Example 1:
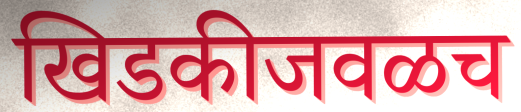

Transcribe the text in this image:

खिडकीजवळच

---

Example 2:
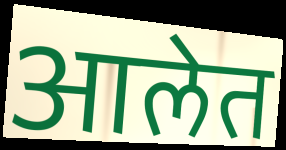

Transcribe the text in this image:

आलेत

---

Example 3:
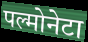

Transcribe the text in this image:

पल्मोनेटा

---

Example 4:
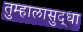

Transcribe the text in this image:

तुम्हालासुद्धा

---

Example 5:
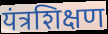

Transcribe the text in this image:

यंत्रशिक्षण